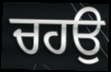
ਚਹਉ